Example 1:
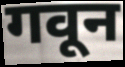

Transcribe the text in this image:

गवून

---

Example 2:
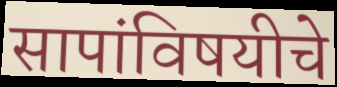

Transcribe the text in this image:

सापांविषयीचे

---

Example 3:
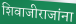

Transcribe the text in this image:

शिवाजीराजांना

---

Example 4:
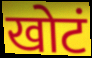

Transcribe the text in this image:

खोटं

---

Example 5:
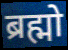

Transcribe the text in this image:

ब्रह्मो